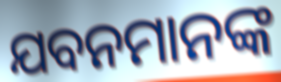
ଯବନମାନଙ୍କ